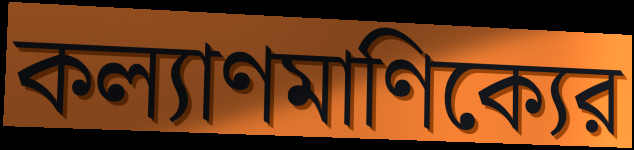
কল্যাণমাণিক্যের